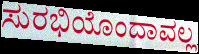
ಸುರಭಿಯೊಂದಾವಲ್ಲ